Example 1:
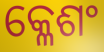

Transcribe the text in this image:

କ୍ଳେଶଂ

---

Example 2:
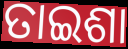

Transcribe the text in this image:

ତାଇଶା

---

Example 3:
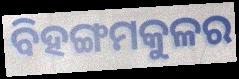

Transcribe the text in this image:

ବିହଙ୍ଗମକୁଳର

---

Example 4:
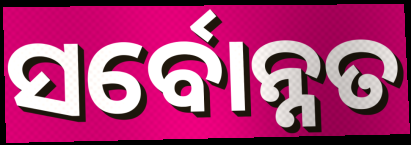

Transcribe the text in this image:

ସର୍ବୋନ୍ନତ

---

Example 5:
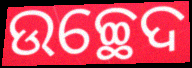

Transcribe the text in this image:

ଉଚ୍ଛେଦ